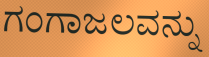
ಗಂಗಾಜಲವನ್ನು